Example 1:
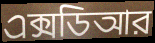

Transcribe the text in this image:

এক্সডিআর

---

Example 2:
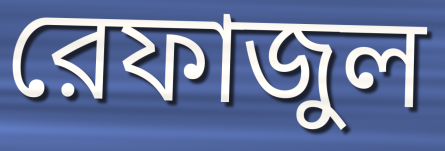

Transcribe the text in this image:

রেফাজুল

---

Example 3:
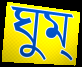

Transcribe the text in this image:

ঘুম্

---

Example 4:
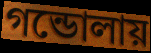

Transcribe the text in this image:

গন্ডোলায়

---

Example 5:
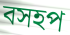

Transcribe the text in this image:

বসহপ